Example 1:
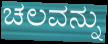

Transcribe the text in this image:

ಚಲವನ್ನು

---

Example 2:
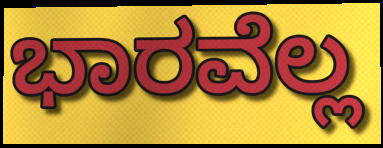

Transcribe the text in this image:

ಭಾರವೆಲ್ಲ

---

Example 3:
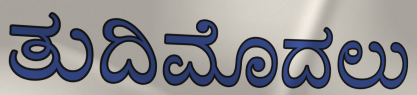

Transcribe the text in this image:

ತುದಿಮೊದಲು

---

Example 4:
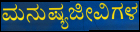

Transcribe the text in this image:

ಮನುಷ್ಯಜೀವಿಗಳ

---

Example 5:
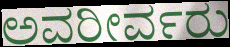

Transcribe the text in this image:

ಅವರೀರ್ವರು